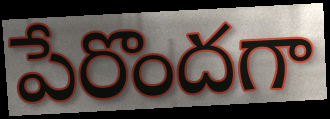
పేరొందగా